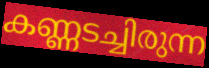
കണ്ണടച്ചിരുന്ന